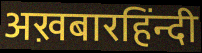
अख़बारहिंन्दी